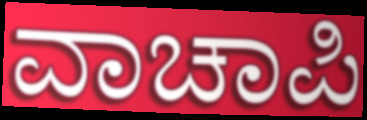
ವಾಚಾಪಿ